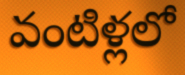
వంటిళ్లలో